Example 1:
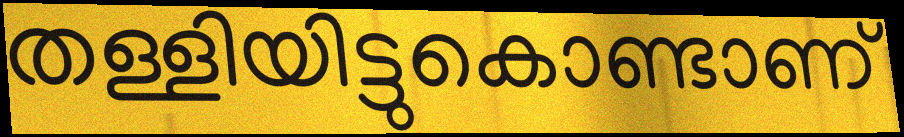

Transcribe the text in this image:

തള്ളിയിട്ടുകൊണ്ടാണ്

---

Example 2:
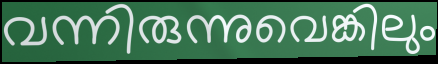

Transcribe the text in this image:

വന്നിരുന്നുവെങ്കിലും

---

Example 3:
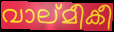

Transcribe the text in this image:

വാല്മീകീ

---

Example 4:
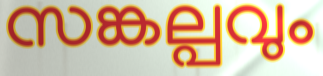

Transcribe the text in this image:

സങ്കല്പവും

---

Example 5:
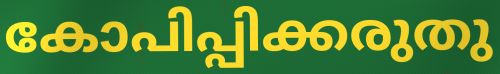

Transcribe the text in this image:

കോപിപ്പിക്കരുതു